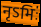
नृऽभिः॑